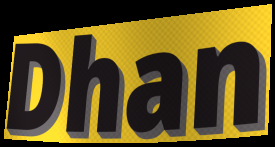
Dhan